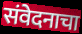
संवेदनाचा